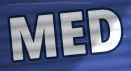
MED